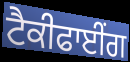
ਟੈਕੀਫਾਈਂਗ